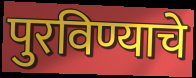
पुरविण्याचे